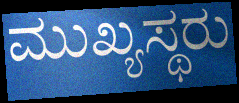
ಮುಖ್ಯಸ್ಥರು